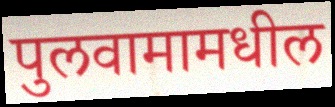
पुलवामामधील